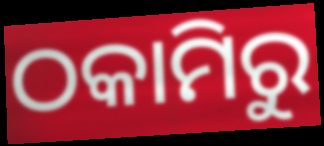
ଠକାମିରୁ